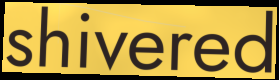
shivered